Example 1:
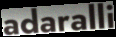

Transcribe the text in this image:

adaralli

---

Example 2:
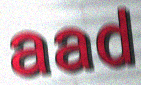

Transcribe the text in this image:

aad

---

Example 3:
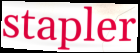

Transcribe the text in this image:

stapler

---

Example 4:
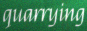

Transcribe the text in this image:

quarrying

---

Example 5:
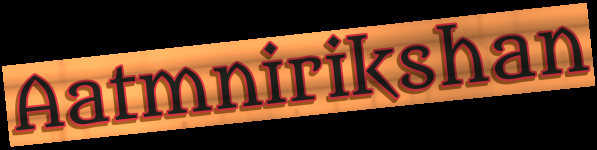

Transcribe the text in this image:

Aatmnirikshan